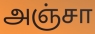
அஞ்சா